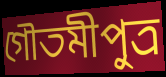
গৌতমীপুত্র